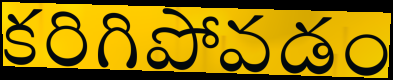
కరిగిపోవడం